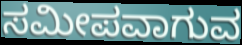
ಸಮೀಪವಾಗುವ